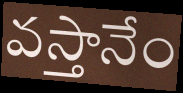
వస్తానేం